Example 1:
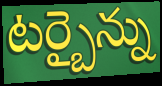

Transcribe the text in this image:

టర్బైన్ను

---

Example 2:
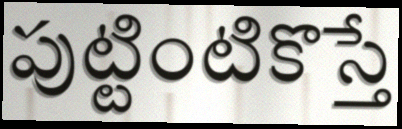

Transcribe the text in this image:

పుట్టింటికొస్తే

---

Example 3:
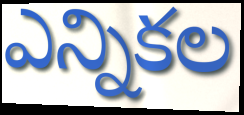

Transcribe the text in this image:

ఎన్నికల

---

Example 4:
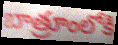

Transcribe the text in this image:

బాత్రూంలోకి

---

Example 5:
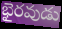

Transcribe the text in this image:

భైరవుడు